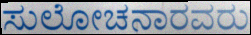
ಸುಲೋಚನಾರವರು